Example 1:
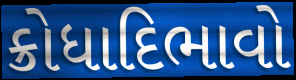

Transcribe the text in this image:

ક્રોધાદિભાવો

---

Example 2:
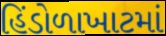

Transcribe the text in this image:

હિંડોળાખાટમાં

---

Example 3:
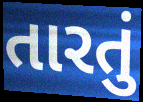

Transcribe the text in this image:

તારતું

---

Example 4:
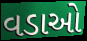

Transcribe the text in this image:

વડાઓ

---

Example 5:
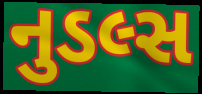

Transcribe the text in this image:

નુડલ્સ